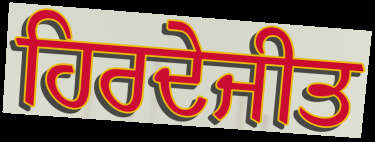
ਹਿਰਦੇਜੀਤ